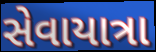
સેવાયાત્રા